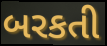
બરકતી